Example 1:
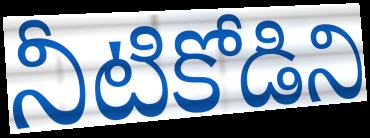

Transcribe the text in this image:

నీటికోడిని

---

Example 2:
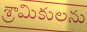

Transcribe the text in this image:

శ్రామికులను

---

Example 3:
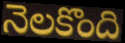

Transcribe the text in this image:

నెలకొంది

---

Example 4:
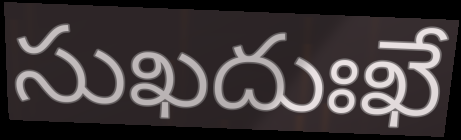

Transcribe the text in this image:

సుఖదుఃఖే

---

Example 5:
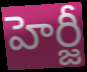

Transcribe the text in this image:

హెర్జీ